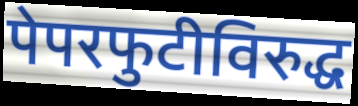
पेपरफुटीविरुद्ध